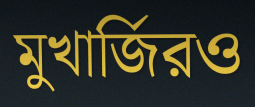
মুখার্জিরও